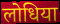
लोधिया